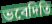
ভবেদিতি